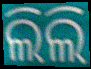
ଲିଲି